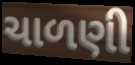
ચાળણી